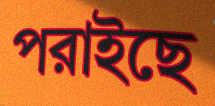
পরাইছে